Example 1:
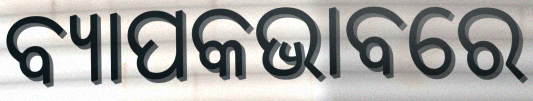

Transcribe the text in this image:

ବ୍ୟାପକଭାବରେ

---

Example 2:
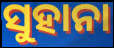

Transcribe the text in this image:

ସୁହାନା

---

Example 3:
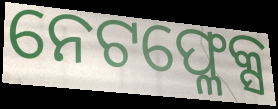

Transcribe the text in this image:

ନେଟଫ୍ଳେକ୍ସ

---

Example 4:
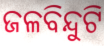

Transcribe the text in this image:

ଜଳବିନ୍ଦୁଟି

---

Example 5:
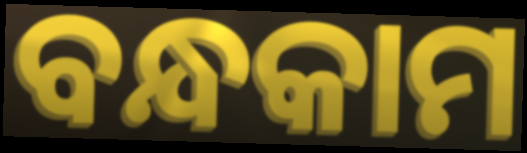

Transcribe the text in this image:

ବନ୍ଧକାମ